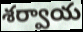
శర్వాయ